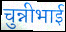
चुन्नीभाई